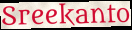
Sreekanto